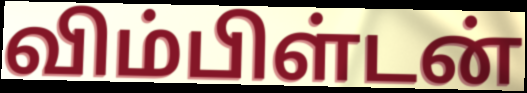
விம்பிள்டன்